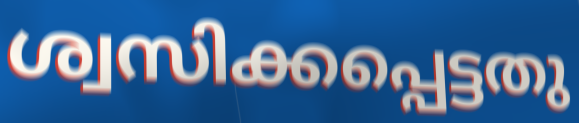
ശ്വസിക്കപ്പെട്ടതു